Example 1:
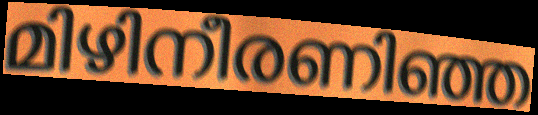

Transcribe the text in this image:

മിഴിനീരണിഞ്ഞ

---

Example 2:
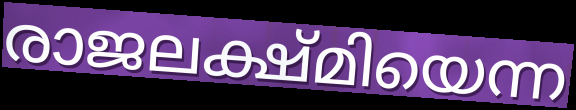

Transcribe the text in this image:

രാജലക്ഷ്മിയെന്ന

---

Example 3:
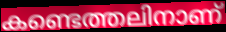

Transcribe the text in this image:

കണ്ടെത്തലിനാണ്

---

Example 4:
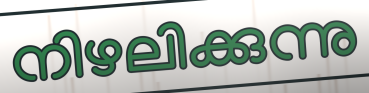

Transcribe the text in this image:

നിഴലിക്കുന്നു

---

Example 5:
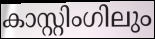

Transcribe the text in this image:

കാസ്റ്റിംഗിലും